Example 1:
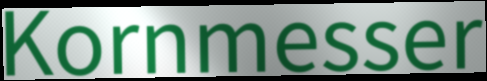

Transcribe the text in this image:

Kornmesser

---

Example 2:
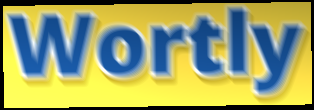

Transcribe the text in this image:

Wortly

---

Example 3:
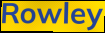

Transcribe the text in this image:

Rowley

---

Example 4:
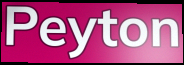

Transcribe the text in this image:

Peyton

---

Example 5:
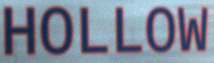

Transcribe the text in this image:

HOLLOW